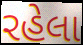
રહેલા